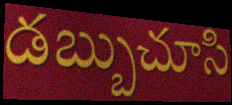
డబ్బుచూసి